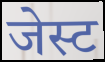
जेस्‍ट